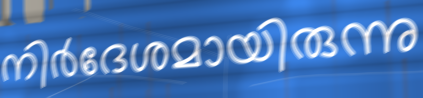
നിർദേശമായിരുന്നു